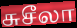
சுசீலா